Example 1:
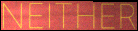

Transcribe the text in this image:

NEITHER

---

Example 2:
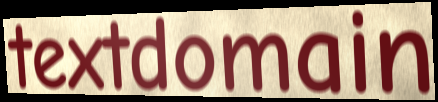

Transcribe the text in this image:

textdomain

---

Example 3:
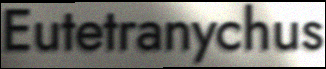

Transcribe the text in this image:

Eutetranychus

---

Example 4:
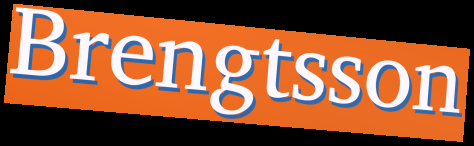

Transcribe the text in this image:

Brengtsson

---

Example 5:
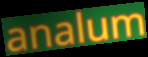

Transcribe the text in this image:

analum